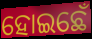
ହୋଇଛେଁ